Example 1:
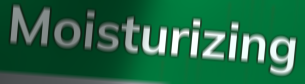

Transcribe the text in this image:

Moisturizing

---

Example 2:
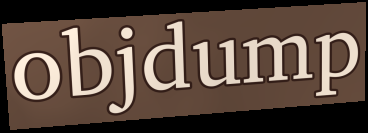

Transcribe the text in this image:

objdump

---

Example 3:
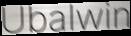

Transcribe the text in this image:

Ubalwin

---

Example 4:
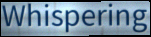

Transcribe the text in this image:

Whispering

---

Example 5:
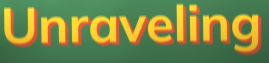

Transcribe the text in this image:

Unraveling